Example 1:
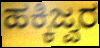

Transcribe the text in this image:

ಹಕ್ಕಿಜ್ವರ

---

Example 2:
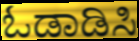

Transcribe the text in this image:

ಓಡಾಡಿಸಿ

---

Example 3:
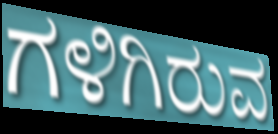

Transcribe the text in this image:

ಗಳಿಗಿರುವ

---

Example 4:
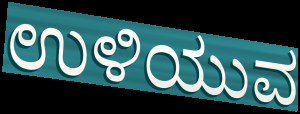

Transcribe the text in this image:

ಉಳಿಯುವ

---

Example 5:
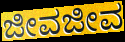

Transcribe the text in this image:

ಜೀವಜೀವ